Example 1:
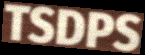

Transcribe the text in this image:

TSDPS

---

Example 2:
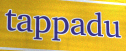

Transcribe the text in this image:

tappadu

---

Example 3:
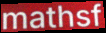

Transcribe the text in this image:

mathsf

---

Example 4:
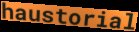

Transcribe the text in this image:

haustorial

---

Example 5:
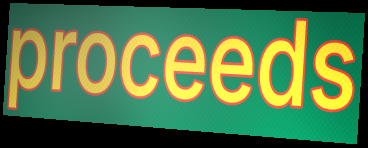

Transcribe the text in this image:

proceeds